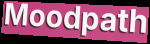
Moodpath